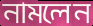
নামলেন